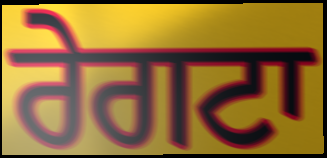
ਰੇਗਟਾ